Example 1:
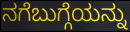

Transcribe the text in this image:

ನಗೆಬುಗ್ಗೆಯನ್ನು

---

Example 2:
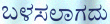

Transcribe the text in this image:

ಬಳಸಲಾಗದು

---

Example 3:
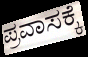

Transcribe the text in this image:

ಪ್ರವಾಸಕ್ಕೆ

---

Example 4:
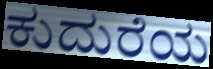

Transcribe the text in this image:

ಕುದುರೆಯ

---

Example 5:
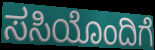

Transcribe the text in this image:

ಸಸಿಯೊಂದಿಗೆ